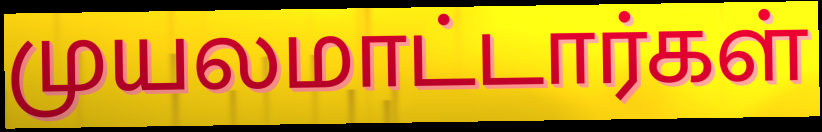
முயலமாட்டார்கள்